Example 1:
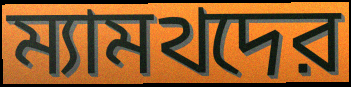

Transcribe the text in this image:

ম্যামথদের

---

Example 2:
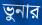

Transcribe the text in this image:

ভুনার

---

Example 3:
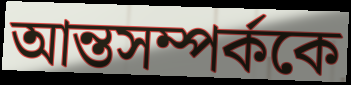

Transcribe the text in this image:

আন্তসম্পর্ককে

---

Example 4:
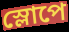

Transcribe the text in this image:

স্লোপে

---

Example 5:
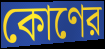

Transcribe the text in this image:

কোণের